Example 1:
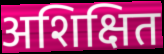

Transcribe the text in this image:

अशिक्षित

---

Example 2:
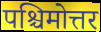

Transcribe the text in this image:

पश्चिमोत्तर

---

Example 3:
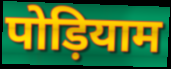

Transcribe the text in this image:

पोड़ियाम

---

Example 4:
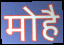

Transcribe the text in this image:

मोहै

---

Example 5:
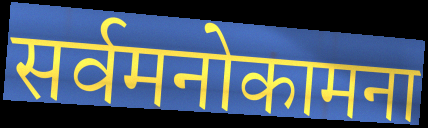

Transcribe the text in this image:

सर्वमनोकामना